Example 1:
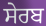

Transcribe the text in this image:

ਸੇਰਬ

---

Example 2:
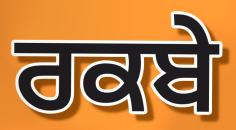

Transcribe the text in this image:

ਰਕਬੇ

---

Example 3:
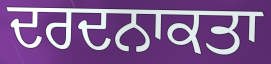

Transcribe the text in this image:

ਦਰਦਨਾਕਤਾ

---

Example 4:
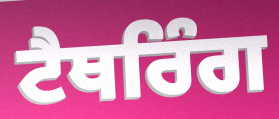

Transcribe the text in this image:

ਟੈਥਰਿੰਗ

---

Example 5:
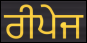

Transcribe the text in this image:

ਰੀਪੇਜ